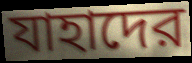
যাহাদের